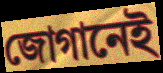
জোগানেই